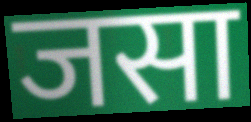
जसा